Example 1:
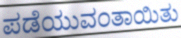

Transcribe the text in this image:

ಪಡೆಯುವಂತಾಯಿತು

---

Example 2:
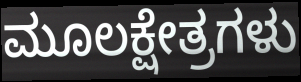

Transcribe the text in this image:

ಮೂಲಕ್ಷೇತ್ರಗಳು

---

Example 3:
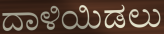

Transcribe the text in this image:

ದಾಳಿಯಿಡಲು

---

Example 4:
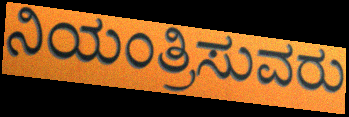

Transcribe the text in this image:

ನಿಯಂತ್ರಿಸುವರು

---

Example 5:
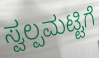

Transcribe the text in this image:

ಸ್ವಲ್ಪಮಟ್ಟಿಗೆ